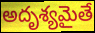
అదృశ్యమైతే